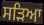
ਸੜਿਆ